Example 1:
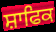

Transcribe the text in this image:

ਸ਼ਾਫਿਕ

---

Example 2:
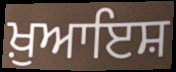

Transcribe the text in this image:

ਖ਼ੁਆਇਸ਼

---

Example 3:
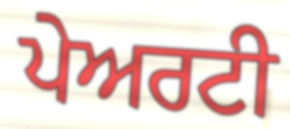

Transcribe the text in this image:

ਪੇਅਰਟੀ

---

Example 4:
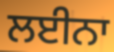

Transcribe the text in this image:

ਲਈਨਾ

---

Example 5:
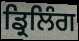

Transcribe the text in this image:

ਡ੍ਰਿਲਿੰਗ